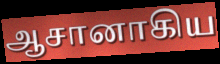
ஆசானாகிய